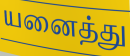
யனைத்து